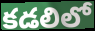
కడలిలో